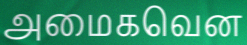
அமைகவென